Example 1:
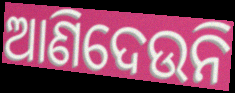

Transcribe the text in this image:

ଆଣିଦେଉନି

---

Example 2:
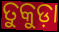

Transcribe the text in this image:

ତୁକୁଡ଼ା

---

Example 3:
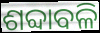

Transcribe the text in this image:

ଶବ୍ଦାବଳି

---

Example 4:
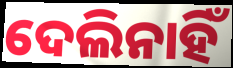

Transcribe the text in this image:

ଦେଲିନାହିଁ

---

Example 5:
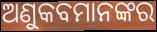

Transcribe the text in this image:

ଅଣୁକବମାନଙ୍କର